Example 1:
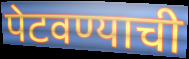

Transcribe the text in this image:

पेटवण्याची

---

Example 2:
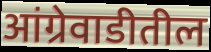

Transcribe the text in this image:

आंग्रेवाडीतील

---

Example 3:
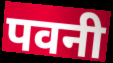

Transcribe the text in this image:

पवनी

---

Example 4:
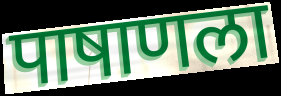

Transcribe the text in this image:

पाषाणला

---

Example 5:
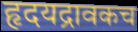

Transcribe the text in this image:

हृदयद्रावकच